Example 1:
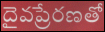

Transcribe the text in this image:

దైవప్రేరణతో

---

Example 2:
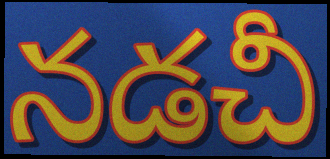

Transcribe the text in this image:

నడచీ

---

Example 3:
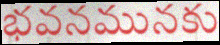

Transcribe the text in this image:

భవనమునకు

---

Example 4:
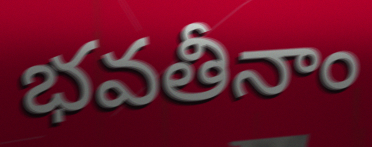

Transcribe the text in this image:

భవతీనాం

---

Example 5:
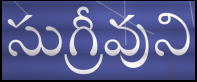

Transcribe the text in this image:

సుగ్రీవుని